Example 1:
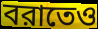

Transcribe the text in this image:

বরাতেও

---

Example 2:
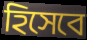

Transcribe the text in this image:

হিসেবে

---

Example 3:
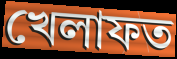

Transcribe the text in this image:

খেলাফত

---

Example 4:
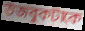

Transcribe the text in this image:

উজবুকটাকে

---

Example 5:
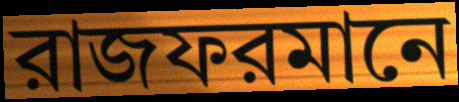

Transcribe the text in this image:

রাজফরমানে